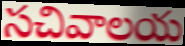
సచివాలయ